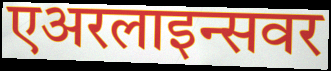
एअरलाइन्सवर